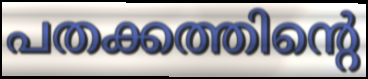
പതക്കത്തിന്റെ